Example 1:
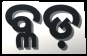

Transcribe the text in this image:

ବ୍ଳଡ଼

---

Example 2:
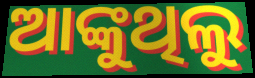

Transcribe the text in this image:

ଆଙ୍କୁଥିଲୁ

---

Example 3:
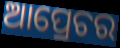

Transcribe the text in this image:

ଆପ୍ରେଚର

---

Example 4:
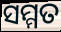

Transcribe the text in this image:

ସମ୍ମତ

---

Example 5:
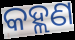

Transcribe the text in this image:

କହ୍ଲଣ